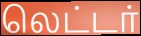
லெட்டர்